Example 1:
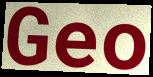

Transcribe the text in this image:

Geo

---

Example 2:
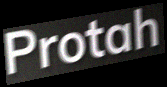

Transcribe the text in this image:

Protah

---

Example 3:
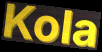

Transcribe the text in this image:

Kola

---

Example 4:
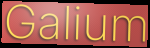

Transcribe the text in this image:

Galium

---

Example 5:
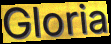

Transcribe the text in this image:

Gloria